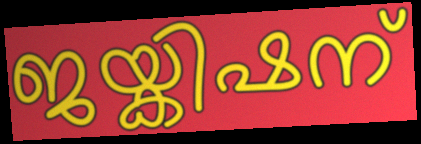
ജയ്കിഷന്